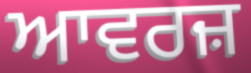
ਆਵਰਜ਼